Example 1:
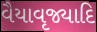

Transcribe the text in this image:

વૈયાવૃજ્યાદિ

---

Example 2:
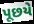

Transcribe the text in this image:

પૂછયે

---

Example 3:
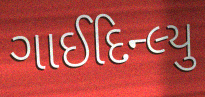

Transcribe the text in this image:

ગાઈદિન્લ્યુ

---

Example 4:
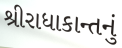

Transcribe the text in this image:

શ્રીરાધાકાન્તનું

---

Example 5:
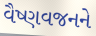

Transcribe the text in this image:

વૈષ્ણવજનને